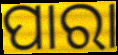
ପାରା